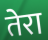
तेरा